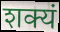
शक्यं